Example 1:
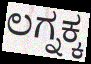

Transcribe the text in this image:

ಲಗ್ನಕ್ಕ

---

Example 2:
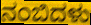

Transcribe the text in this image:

ನಂಬಿದಳು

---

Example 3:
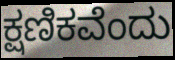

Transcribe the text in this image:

ಕ್ಷಣಿಕವೆಂದು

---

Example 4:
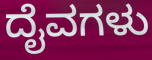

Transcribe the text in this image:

ದೈವಗಳು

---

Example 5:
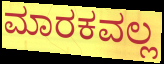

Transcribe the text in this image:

ಮಾರಕವಲ್ಲ